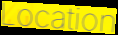
Location